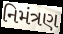
નિમંત્રણ